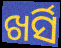
ଖର୍ସି